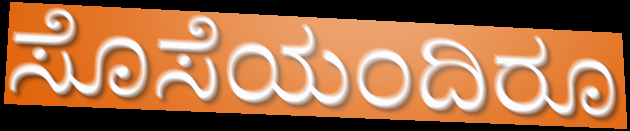
ಸೊಸೆಯಂದಿರೂ